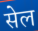
सेल